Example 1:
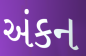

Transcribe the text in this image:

અંકન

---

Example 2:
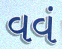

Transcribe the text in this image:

વવં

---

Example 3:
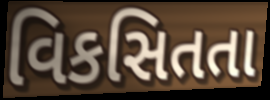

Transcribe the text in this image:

વિકસિતતા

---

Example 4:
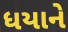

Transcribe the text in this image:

ધયાને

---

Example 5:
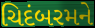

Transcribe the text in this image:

ચિદંબરમને